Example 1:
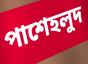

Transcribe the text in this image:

পাশেহলুদ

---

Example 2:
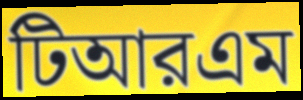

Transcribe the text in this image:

টিআরএম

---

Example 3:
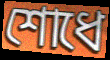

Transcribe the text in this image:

শোধে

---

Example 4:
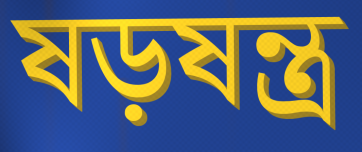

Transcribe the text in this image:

ষড়ষন্ত্র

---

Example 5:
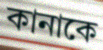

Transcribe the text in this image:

কানাকে